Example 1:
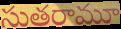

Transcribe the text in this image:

సుతరామూ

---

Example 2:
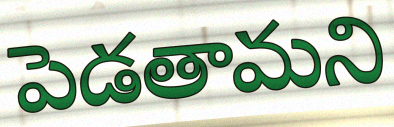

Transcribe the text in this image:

పెడతామని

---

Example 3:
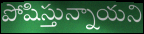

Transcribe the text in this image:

పోషిస్తున్నాయని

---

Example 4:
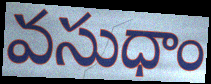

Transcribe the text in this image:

వసుధాం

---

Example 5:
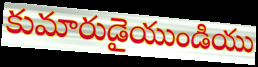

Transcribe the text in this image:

కుమారుడైయుండియు